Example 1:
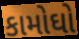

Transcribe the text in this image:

કામોઘો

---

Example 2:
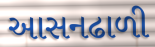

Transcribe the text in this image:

આસનઢાળી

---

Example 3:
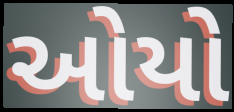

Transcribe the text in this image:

ઓયો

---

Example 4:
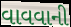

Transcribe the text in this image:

વાવવાની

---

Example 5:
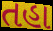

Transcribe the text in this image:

તહા